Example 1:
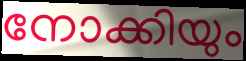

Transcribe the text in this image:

നോക്കിയും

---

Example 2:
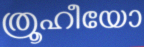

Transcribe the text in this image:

ത്രൂഹീയോ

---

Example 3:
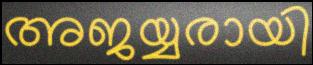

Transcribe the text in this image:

അജയ്യരായി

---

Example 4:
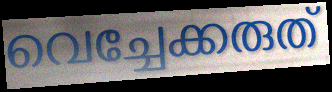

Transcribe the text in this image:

വെച്ചേക്കരുത്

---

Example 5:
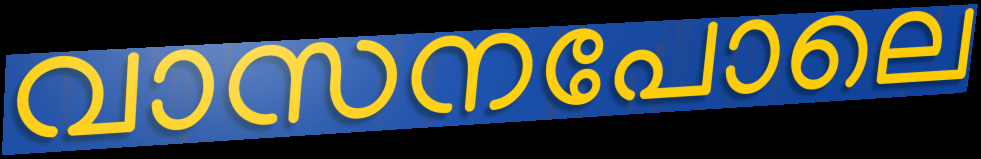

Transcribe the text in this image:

വാസനപോലെ